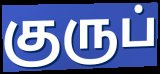
குருப்